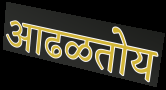
आढळतोय